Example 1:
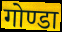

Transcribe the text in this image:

गोण्डा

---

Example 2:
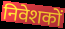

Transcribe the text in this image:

निवेशकों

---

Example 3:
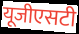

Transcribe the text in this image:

यूजीएसटी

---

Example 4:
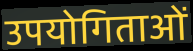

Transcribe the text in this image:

उपयोगिताओं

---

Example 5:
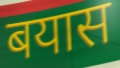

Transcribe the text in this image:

बयास